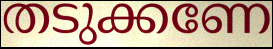
തടുക്കണേ